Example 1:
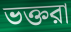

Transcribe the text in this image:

ভক্তরা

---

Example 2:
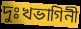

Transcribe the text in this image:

দুঃখভাগিনী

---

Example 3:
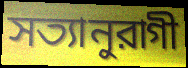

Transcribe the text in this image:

সত্যানুরাগী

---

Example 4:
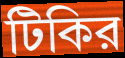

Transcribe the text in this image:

টিকির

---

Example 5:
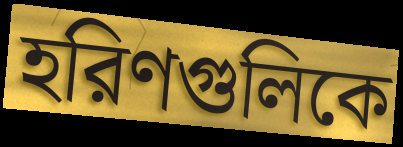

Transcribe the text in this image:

হরিণগুলিকে